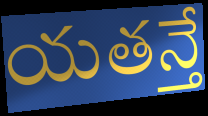
యతన్తే